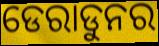
ଡେରାଡୁନର